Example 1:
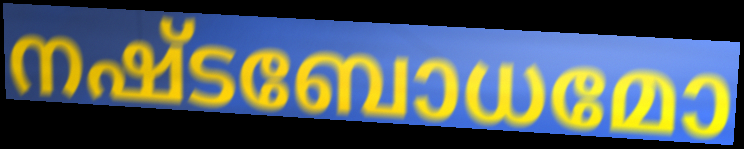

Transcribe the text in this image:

നഷ്ടബോധമോ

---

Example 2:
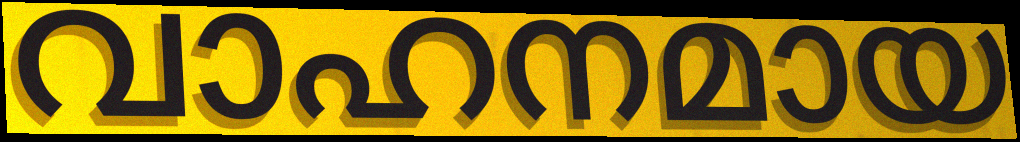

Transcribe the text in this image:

വാഹനമായ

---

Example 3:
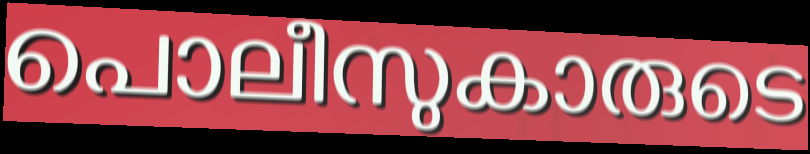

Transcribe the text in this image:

പൊലീസുകാരുടെ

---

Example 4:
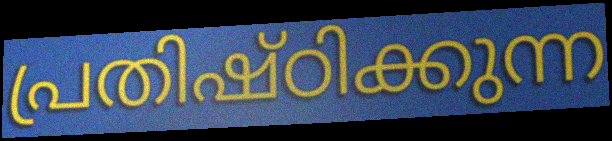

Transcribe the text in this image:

പ്രതിഷ്ഠിക്കുന്ന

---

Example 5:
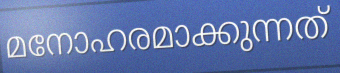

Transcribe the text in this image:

മനോഹരമാക്കുന്നത്